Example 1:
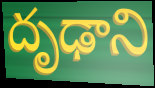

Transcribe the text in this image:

దృఢాని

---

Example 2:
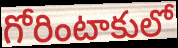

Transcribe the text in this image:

గోరింటాకులో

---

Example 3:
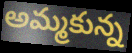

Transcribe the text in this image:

అమ్మకున్న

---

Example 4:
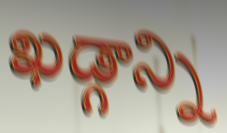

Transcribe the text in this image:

ఖడ్గాన్ని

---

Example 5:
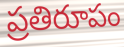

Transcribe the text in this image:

ప్రతిరూపం